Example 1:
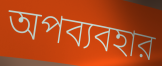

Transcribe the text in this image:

অপব্যবহার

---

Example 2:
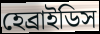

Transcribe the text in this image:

হেব্রাইডিস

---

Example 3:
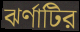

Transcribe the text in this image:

ঝর্ণাটির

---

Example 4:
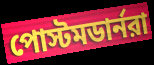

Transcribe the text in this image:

পোস্টমডার্নরা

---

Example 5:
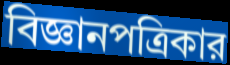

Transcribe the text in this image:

বিজ্ঞানপত্রিকার